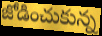
జోడించుకున్న